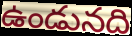
ఉండునది